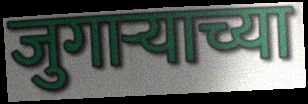
जुगाऱ्याच्या